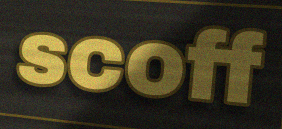
scoff